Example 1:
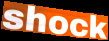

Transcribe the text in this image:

shock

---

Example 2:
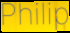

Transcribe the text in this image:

Philip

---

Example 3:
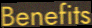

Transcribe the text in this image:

Benefits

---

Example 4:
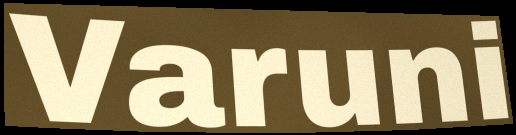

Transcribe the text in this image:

Varuni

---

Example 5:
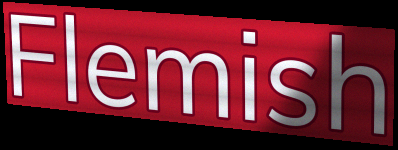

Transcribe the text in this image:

Flemish